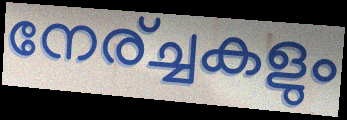
നേര്ച്ചകളും